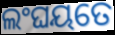
ଲଂଘୟତେ